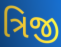
ત્રિજી